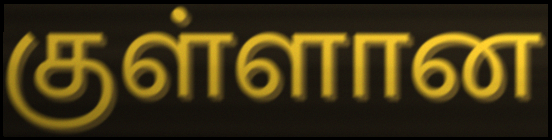
குள்ளான